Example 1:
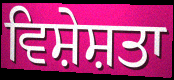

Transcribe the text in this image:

ਵਿਸ਼ੇਸ਼ਤਾ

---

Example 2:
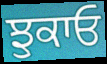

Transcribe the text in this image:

ਝੁਕਾਓ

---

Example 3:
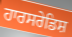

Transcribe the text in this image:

ਹਾਰਸਰੇਡਿਸ਼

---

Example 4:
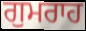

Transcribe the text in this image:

ਗੁਮਰਾਹ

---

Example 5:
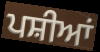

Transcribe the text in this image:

ਪਸ਼ੀਆਂ